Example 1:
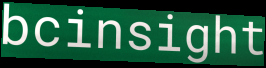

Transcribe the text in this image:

bcinsight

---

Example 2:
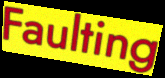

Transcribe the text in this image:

Faulting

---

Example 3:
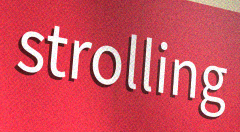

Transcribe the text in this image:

strolling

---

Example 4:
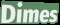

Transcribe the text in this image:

Dimes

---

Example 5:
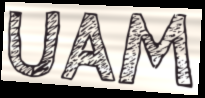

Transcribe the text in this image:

UAM